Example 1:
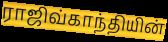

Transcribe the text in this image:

ராஜிவ்காந்தியின்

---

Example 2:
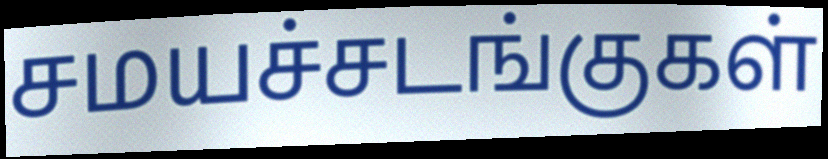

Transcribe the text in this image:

சமயச்சடங்குகள்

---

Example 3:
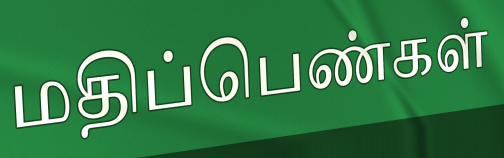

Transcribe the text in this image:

மதிப்பெண்கள்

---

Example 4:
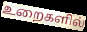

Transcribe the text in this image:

உறைகளில்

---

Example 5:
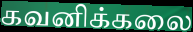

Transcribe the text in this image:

கவனிக்கலை